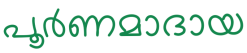
പൂർണമാദായ